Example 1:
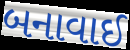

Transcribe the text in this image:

બનાવાઈ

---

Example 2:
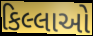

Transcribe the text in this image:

કિલ્લાઓ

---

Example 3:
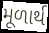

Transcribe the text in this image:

મૂળાર્થ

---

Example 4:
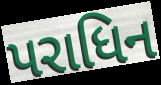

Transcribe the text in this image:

પરાધિન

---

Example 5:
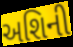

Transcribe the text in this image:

અશિની